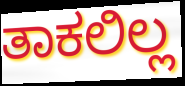
ತಾಕಲಿಲ್ಲ